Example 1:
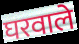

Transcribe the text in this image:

घरवाले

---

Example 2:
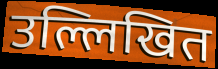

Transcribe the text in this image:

उल्लिखित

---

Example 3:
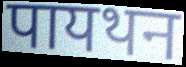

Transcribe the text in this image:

पायथन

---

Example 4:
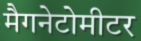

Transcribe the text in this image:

मैगनेटोमीटर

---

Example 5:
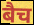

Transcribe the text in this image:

बैच